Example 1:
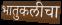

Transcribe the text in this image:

भातुकलीचा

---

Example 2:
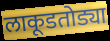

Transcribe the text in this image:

लाकूडतोड्या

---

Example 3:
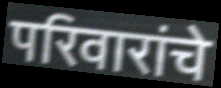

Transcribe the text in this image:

परिवारांचे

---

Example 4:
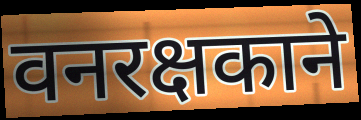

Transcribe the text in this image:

वनरक्षकाने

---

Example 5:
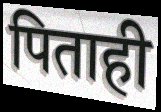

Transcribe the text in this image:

पिताही